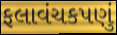
ફલાવંચકપણું